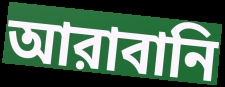
আরাবানি